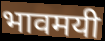
भावमयी